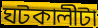
ঘটকালীটা